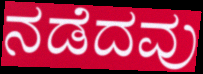
ನಡೆದವು